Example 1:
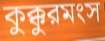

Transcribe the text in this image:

কুক্কুরমংস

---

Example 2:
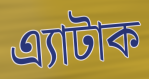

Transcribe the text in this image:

এ্যাটাক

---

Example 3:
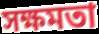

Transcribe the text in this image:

সক্ষমতা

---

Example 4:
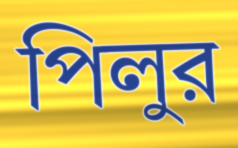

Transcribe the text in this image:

পিলুর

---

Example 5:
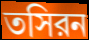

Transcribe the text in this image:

তসিরন